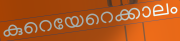
കുറെയേറെക്കാലം